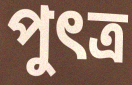
পুৎত্র